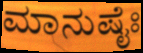
ಮಾನುಷೈಃ